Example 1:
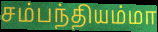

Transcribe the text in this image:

சம்பந்தியம்மா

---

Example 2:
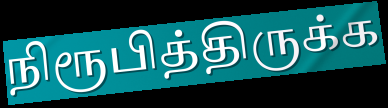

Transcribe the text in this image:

நிரூபித்திருக்க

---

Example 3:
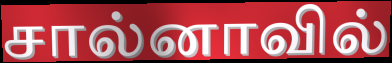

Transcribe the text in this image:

சால்னாவில்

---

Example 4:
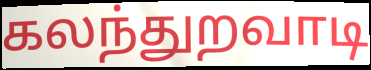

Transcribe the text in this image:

கலந்துறவாடி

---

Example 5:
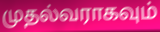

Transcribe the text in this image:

முதல்வராகவும்